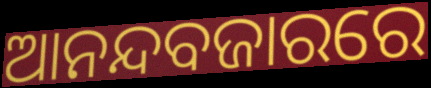
ଆନନ୍ଦବଜାରରେ